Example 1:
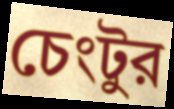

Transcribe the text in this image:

চেংটুর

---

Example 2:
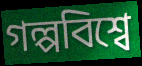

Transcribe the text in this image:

গল্পবিশ্বে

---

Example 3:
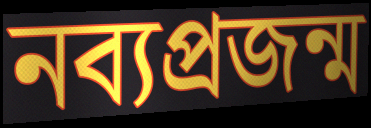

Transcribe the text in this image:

নব্যপ্রজন্ম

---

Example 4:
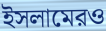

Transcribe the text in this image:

ইসলামেরও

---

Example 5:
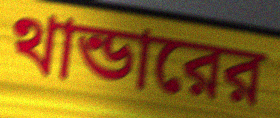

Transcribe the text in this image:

থান্ডারের